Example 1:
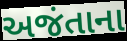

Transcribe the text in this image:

અજંતાના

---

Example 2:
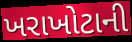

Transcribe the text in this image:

ખરાખોટાની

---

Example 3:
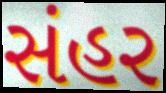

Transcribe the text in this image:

સંહર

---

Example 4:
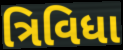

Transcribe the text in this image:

ત્રિવિધા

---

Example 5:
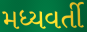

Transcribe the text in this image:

મધ્યવર્તી